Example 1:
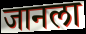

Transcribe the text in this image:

जानला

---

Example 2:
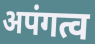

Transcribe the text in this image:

अपंगत्व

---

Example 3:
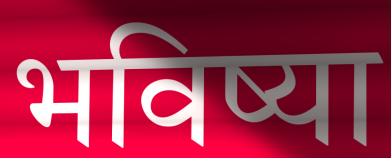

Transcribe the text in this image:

भविष्या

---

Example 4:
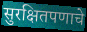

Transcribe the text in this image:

सुरक्षितपणाचे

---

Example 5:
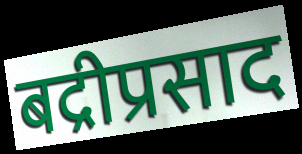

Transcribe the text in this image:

बद्रीप्रसाद